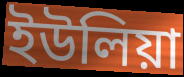
ইউলিয়া